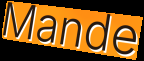
Mande